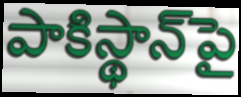
పాకిస్థాన్‌పై